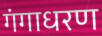
गंगाधरण